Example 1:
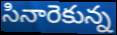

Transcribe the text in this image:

సినారెకున్న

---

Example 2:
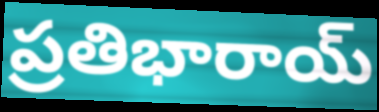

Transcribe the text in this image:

ప్రతిభారాయ్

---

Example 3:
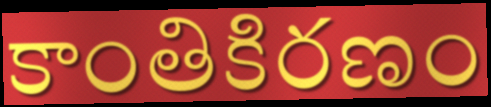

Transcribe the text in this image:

కాంతికిరణం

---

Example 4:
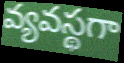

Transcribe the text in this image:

వ్యవస్థగా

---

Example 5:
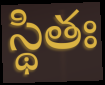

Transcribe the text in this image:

స్థితః